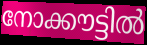
നോക്കൗട്ടിൽ